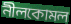
নীলকোমল